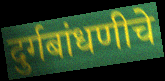
दुर्गबांधणीचे